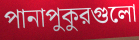
পানাপুকুরগুলো